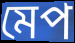
মেপ